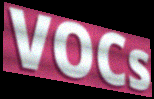
VOCs